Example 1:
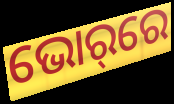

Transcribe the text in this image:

ଭୋର୍‌ରେ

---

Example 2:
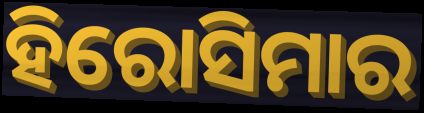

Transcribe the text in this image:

ହିରୋସିମାର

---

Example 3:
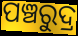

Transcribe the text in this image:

ପଞ୍ଚରୁଦ୍ର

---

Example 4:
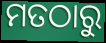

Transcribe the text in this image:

ମତଠାରୁ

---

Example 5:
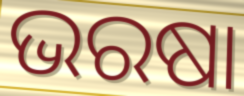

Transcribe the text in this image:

ଭରଷା